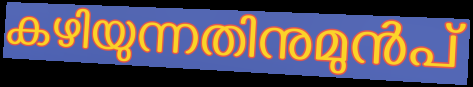
കഴിയുന്നതിനുമുൻപ്